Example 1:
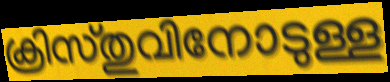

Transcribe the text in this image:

ക്രിസ്തുവിനോടുള്ള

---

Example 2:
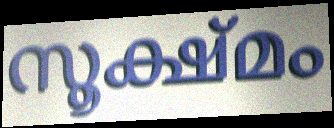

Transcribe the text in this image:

സൂക്ഷ്‌മം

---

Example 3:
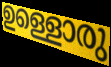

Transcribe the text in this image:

ഉള്ളൊരു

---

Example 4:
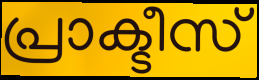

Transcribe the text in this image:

പ്രാക്ടീസ്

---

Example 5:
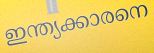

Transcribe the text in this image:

ഇന്ത്യക്കാരനെ